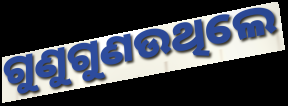
ଗୁଣୁଗୁଣଉଥିଲେ